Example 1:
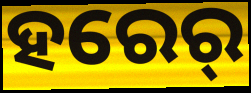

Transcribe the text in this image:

ହରେର୍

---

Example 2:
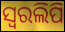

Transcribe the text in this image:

ସ୍ଵରଲିପି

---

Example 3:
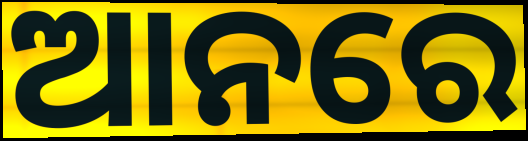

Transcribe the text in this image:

ଆନରେ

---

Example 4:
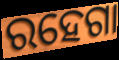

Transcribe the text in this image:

ରହେଗା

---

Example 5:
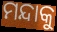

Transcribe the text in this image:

ମନ୍ଦାକୁ